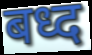
बध्द